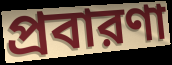
প্রবারণা